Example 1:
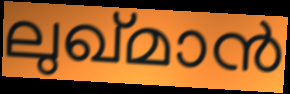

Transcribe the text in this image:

ലുഖ്മാൻ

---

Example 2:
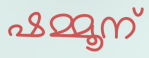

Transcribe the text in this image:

ഷമ്മൂന്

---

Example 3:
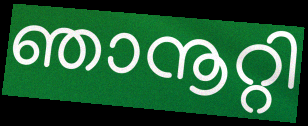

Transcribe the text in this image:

ഞാനൂറ്റി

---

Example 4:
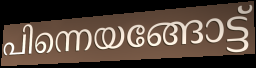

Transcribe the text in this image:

പിന്നെയങ്ങോട്ട്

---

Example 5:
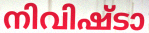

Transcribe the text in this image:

നിവിഷ്ടാ